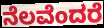
ನೆಲವೆಂದರೆ